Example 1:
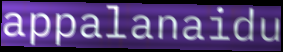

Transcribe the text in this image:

appalanaidu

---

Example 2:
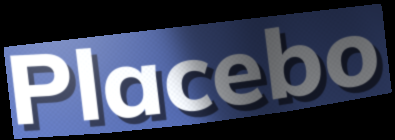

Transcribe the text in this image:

Placebo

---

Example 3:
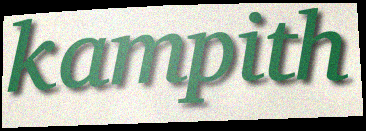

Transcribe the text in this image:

kampith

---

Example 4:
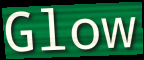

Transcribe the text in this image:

Glow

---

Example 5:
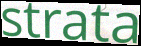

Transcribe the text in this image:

strata